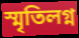
স্মৃতিলগ্ন